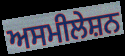
ਅਸਮੀਲੇਸ਼ਨ